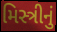
મિસ્ત્રીનું